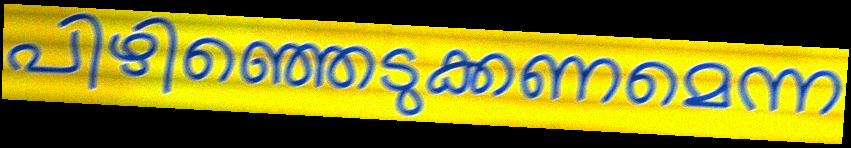
പിഴിഞ്ഞെടുക്കണമെന്ന